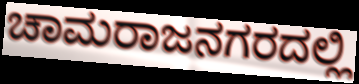
ಚಾಮರಾಜನಗರದಲ್ಲಿ